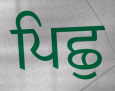
ਪਿਛੁ